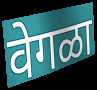
वेगळा